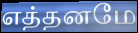
எத்தனமே